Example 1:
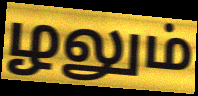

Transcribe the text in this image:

ழலும்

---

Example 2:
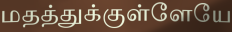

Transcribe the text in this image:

மதத்துக்குள்ளேயே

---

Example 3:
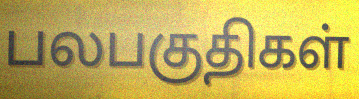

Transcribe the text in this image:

பலபகுதிகள்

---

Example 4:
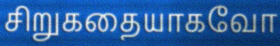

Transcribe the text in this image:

சிறுகதையாகவோ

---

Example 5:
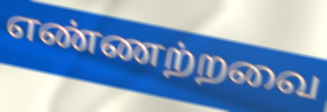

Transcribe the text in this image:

எண்ணற்றவை